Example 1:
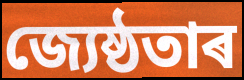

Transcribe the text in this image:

জ্যেষ্ঠতাৰ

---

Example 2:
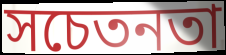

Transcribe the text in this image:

সচেতনতা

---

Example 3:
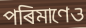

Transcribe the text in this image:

পৰিমাণেও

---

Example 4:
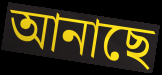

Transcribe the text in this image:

আনাছে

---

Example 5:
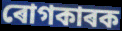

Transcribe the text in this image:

ৰোগকাৰক